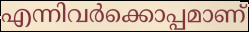
എന്നിവർക്കൊപ്പമാണ്